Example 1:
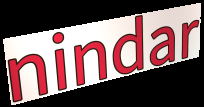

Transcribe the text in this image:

nindar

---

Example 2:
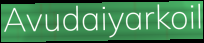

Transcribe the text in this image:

Avudaiyarkoil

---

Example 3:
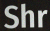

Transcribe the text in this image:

Shr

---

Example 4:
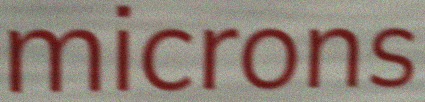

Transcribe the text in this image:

microns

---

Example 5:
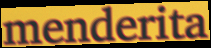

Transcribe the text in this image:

menderita